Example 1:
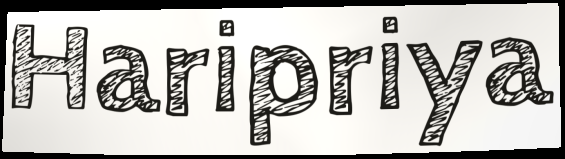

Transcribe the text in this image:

Haripriya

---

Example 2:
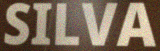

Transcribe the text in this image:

SILVA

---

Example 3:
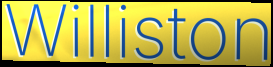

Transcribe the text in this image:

Williston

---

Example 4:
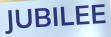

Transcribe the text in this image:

JUBILEE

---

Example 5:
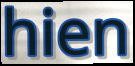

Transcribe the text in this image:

hien